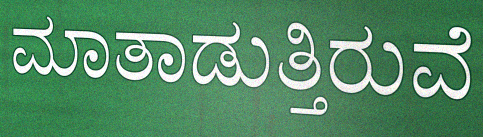
ಮಾತಾಡುತ್ತಿರುವೆ